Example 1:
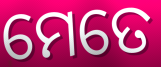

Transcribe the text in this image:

ମେତେ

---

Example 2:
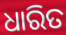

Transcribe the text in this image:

ଧାରିତ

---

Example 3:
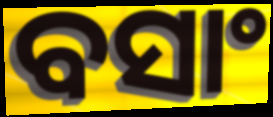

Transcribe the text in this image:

ବସାଂ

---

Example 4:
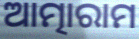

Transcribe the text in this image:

ଆତ୍ମାରାମ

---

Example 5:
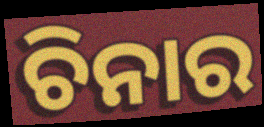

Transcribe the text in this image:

ଚିନାର